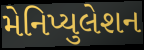
મેનિપ્યુલેશન